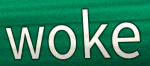
woke